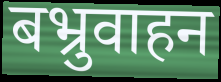
बभ्रुवाहन